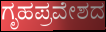
ಗೃಹಪ್ರವೇಶದ